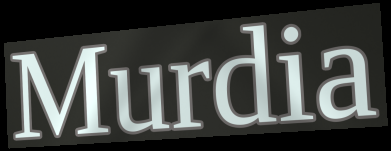
Murdia